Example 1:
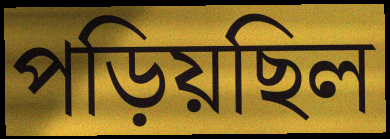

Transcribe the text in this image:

পড়িয়ছিল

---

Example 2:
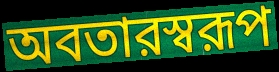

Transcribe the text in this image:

অবতারস্বরূপ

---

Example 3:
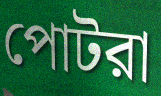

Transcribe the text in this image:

পোটরা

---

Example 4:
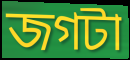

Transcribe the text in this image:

জগটা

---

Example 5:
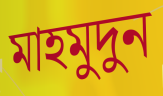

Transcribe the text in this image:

মাহমুদুন